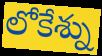
లోకేశ్ను